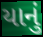
યાનું